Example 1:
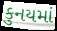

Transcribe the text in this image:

કુનયમાં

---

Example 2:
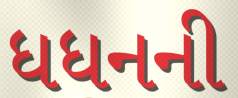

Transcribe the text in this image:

ધધનની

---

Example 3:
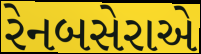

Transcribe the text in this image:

રેનબસેરાએ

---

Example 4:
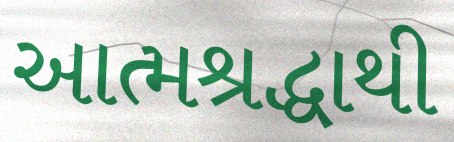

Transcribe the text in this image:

આત્મશ્રદ્ધાથી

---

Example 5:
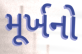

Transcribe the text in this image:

મૂર્ખનો